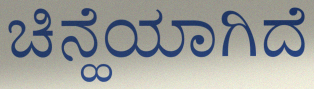
ಚಿನ್ಹೆಯಾಗಿದೆ